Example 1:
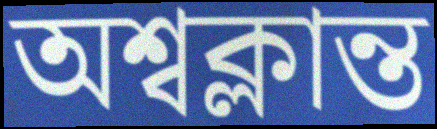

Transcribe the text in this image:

অশ্বক্লান্ত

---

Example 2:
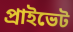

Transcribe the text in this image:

প্ৰাইভেট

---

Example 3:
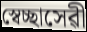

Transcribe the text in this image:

স্বেচ্ছাসেৱী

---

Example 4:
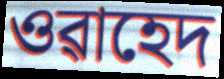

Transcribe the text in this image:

ওৱাহেদ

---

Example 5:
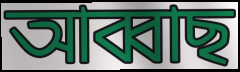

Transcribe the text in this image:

আব্বাছ